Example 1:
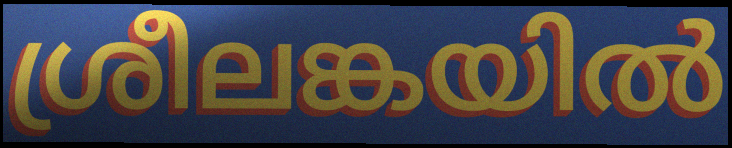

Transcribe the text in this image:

ശ്രീലങ്കയിൽ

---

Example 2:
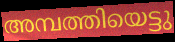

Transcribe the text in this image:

അമ്പത്തിയെട്ടു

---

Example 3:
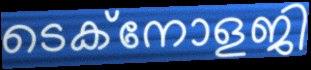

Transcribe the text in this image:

ടെക്നോളജി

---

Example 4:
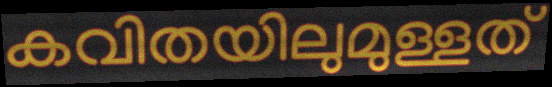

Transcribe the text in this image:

കവിതയിലുമുള്ളത്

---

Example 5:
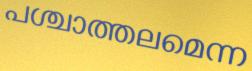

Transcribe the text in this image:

പശ്ചാത്തലമെന്ന